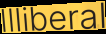
Illiberal